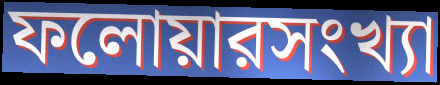
ফলোয়ারসংখ্যা